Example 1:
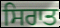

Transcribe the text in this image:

ਸਿਰਾਤ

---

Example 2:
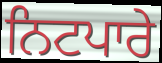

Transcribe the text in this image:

ਨਿਟਪਾਰੇ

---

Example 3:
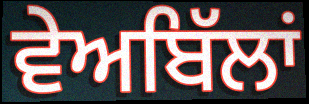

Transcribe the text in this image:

ਵੇਅਬਿੱਲਾਂ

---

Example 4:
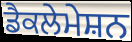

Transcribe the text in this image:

ਡੈਕਲੇਮੇਸ਼ਨ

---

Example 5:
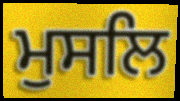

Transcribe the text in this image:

ਮੁਸਲਿ